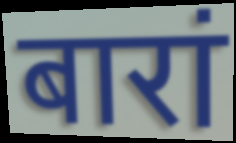
बारां